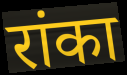
रांका